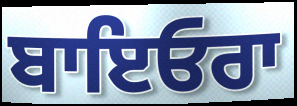
ਬਾਇਓਰਾ